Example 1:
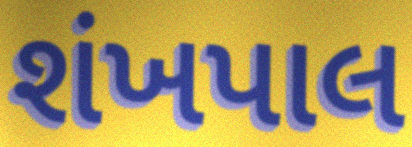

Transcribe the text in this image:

શંખપાલ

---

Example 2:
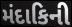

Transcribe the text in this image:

મંદાકિની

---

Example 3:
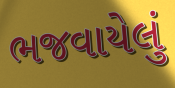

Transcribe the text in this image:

ભજવાયેલું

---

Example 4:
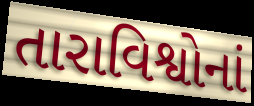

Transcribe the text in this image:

તારાવિશ્વોનાં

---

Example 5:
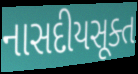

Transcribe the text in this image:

નાસદીયસૂક્ત